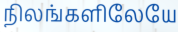
நிலங்களிலேயே